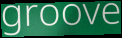
groove